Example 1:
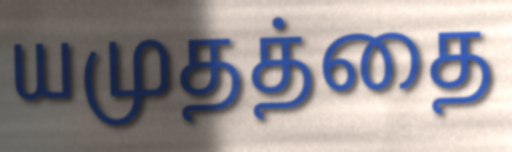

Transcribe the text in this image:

யமுதத்தை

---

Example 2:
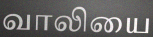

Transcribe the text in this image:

வாலியை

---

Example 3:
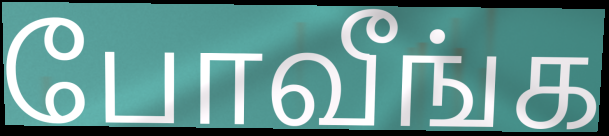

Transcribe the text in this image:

போவீங்க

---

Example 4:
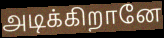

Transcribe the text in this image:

அடிக்கிறானே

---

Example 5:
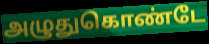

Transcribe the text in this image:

அழுதுகொண்டே